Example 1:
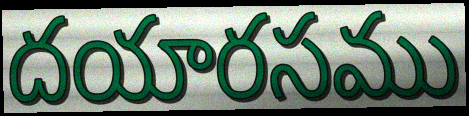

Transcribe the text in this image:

దయారసము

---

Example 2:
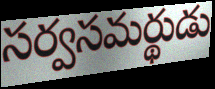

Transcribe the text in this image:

సర్వసమర్థుడు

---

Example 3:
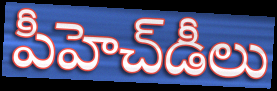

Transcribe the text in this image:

పీహెచ్‌డీలు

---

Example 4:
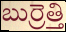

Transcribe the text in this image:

బుర్రెత్తి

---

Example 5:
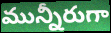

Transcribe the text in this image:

మున్నీరుగా